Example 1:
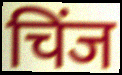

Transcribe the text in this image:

चिंज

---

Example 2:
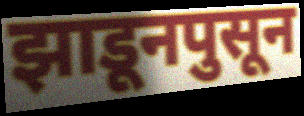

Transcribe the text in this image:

झाडूनपुसून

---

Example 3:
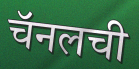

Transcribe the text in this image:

चॅनलची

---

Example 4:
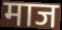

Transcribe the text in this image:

माज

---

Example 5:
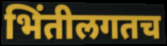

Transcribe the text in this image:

भिंतीलगतच